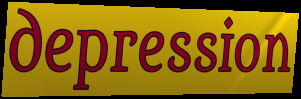
depression